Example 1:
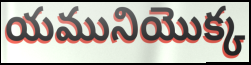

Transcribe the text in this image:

యమునియొక్క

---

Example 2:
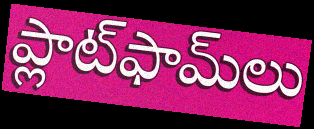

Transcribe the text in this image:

ప్లాట్‌ఫామ్‌లు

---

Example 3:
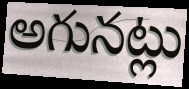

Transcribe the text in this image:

అగునట్లు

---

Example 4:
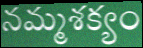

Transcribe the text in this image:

నమ్మశక్యం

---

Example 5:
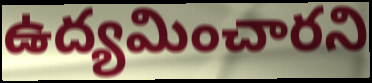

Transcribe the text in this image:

ఉద్యమించారని